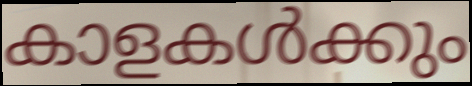
കാളകൾക്കും